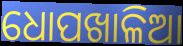
ଧୋପଖାଳିଆ